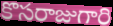
కొసరాజుగారి